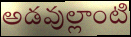
అడవుల్లాంటి